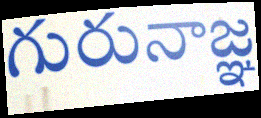
గురునాజ్ఞ